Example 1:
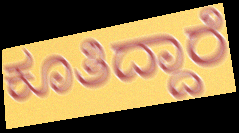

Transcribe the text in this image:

ಕೂತಿದ್ದಾರೆ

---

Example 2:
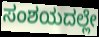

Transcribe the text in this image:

ಸಂಶಯದಲ್ಲೇ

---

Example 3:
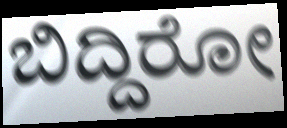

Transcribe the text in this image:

ಬಿದ್ದಿರೋ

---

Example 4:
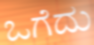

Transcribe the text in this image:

ಒಗೆದು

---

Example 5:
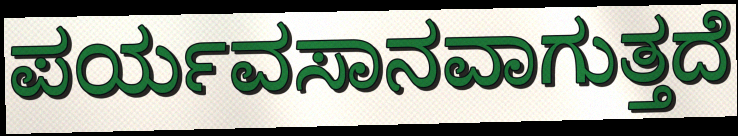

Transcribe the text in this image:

ಪರ್ಯವಸಾನವಾಗುತ್ತದೆ